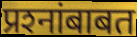
प्रश्‍नांबाबत